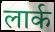
लार्क